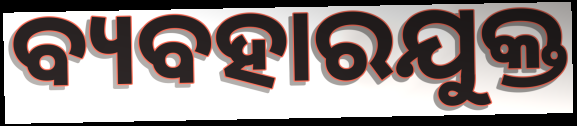
ବ୍ୟବହାରଯୁକ୍ତ